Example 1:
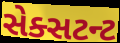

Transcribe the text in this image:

સેક્સટન્ટ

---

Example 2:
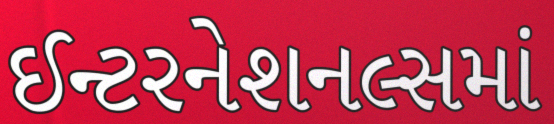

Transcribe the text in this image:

ઈન્ટરનેશનલ્સમાં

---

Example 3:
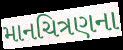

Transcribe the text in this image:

માનચિત્રણના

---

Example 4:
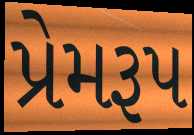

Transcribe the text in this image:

પ્રેમરૂપ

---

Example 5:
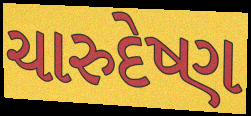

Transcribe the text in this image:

ચારુદેષ્ણ